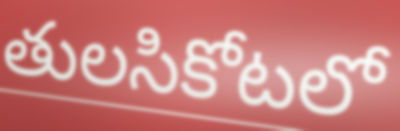
తులసికోటలో